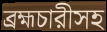
ব্রহ্মচারীসহ